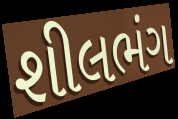
શીલભંગ